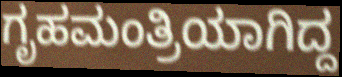
ಗೃಹಮಂತ್ರಿಯಾಗಿದ್ದ